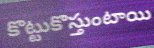
కొట్టుకొస్తుంటాయి